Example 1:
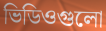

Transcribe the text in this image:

ভিডিওগুলো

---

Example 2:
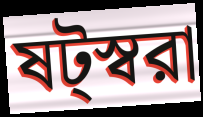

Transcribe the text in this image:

ষট্স্বরা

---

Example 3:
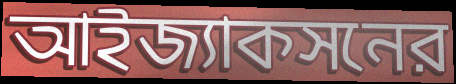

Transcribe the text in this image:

আইজ্যাকসনের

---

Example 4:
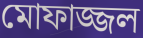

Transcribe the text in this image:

মোফাজ্জল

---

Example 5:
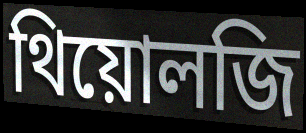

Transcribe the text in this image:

থিয়োলজি